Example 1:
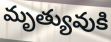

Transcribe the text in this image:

మృత్యువుకి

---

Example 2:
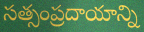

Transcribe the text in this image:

సత్సంప్రదాయాన్ని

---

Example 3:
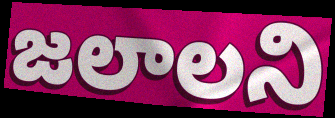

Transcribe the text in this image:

జలాలని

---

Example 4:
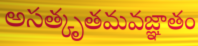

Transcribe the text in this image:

అసత్కృతమవజ్ఞాతం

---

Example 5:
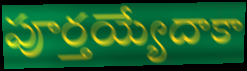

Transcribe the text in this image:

పూర్తయ్యేదాకా